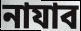
নাযাব